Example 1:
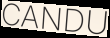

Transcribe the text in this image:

CANDU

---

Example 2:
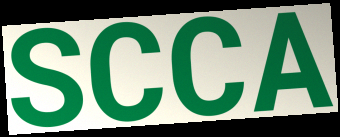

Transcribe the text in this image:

SCCA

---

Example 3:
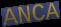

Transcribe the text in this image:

ANCA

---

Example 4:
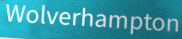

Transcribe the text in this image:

Wolverhampton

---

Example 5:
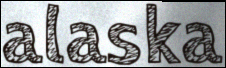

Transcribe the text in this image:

alaska